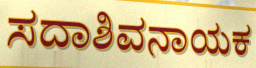
ಸದಾಶಿವನಾಯಕ